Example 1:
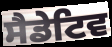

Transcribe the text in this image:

ਸੈਡੇਟਿਵ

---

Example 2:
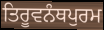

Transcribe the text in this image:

ਤਿਰੂਵਨੰਥਪੁਰਮ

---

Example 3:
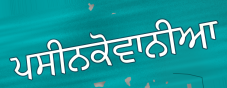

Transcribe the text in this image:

ਪਸੀਨਕੋਵਾਨੀਆ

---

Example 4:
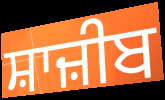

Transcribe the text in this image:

ਸ਼ਾਜ਼ੀਬ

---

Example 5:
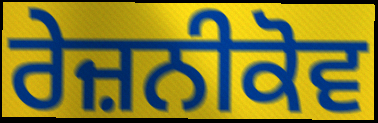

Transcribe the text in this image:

ਰੇਜ਼ਨੀਕੋਵ